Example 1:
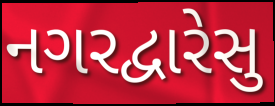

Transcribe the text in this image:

નગરદ્વારેસુ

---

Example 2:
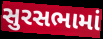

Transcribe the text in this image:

સુરસભામાં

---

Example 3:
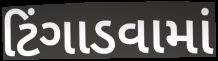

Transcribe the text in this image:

ટિંગાડવામાં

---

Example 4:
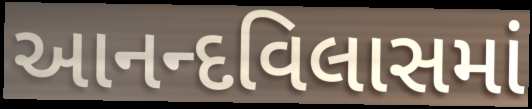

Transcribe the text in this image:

આનન્દવિલાસમાં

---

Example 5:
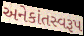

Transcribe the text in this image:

અનેકાંતસ્વરૂપ